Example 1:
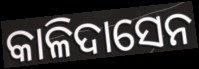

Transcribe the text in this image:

କାଳିଦାସେନ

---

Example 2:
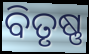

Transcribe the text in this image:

ବିତୃଷ୍ଣ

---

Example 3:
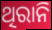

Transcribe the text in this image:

ଥିରାନି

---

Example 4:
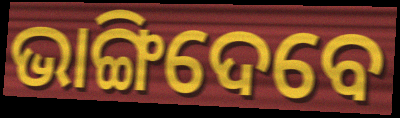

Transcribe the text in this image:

ଭାଙ୍ଗିଦେବେ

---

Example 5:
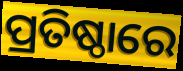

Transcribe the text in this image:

ପ୍ରତିଷ୍ଠାରେ